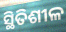
ସ୍ଥିତିଶୀଳ